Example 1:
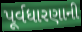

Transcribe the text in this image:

પૂર્વધારણાની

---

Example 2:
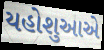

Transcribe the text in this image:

યહોશુઆએ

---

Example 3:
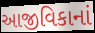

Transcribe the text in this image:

આજીવિકાનાં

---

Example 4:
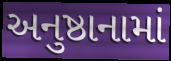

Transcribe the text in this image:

અનુષ્ઠાનામાં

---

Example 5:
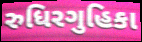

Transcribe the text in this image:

રુધિરગુહિકા